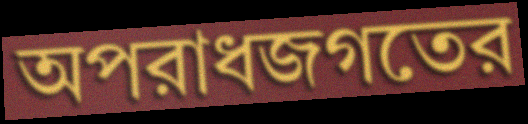
অপরাধজগতের